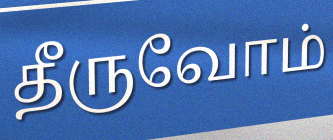
தீருவோம்